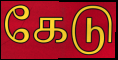
கேடு